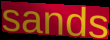
sands